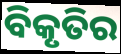
ବିକୃତିର